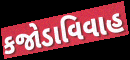
કજોડાવિવાહ